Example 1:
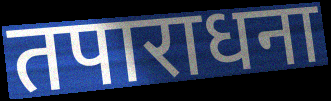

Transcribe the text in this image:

तपाराधना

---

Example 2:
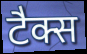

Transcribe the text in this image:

टैक्स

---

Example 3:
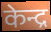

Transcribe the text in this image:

केन्‍द्र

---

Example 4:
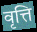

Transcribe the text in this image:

वृत्ति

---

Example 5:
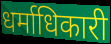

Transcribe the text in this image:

धर्माधिकारी